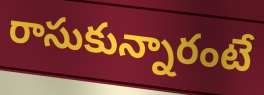
రాసుకున్నారంటే